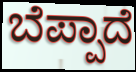
ಬೆಪ್ಪಾದೆ